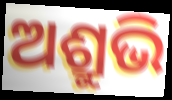
ଅଶ୍ରୁଭି